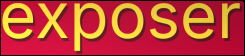
exposer